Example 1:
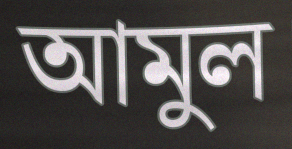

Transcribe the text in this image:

আমুল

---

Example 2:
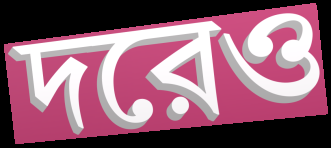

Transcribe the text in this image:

দরেও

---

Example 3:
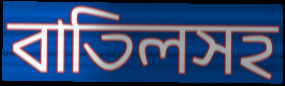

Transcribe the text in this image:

বাতিলসহ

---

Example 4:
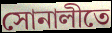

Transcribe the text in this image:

সোনালীতে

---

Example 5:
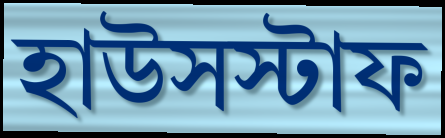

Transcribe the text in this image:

হাউসস্টাফ